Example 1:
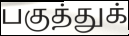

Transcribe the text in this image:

பகுத்துக்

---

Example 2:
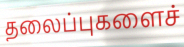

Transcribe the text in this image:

தலைப்புகளைச்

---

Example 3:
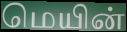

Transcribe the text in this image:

மெயின்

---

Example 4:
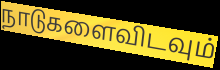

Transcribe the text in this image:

நாடுகளைவிடவும்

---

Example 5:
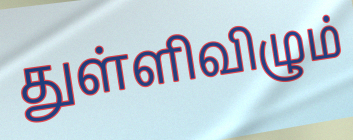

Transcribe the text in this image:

துள்ளிவிழும்